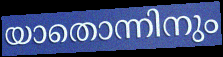
യാതൊന്നിനും